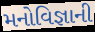
મનોવિજ્ઞાની